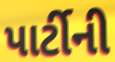
પાર્ટીની